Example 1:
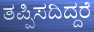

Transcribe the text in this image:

ತಪ್ಪಿಸದಿದ್ದರೆ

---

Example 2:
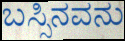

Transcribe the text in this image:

ಬಸ್ಸಿನವನು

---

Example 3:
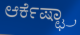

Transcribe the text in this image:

ಆರ್ಕೆಷ್ಟ್ರಾ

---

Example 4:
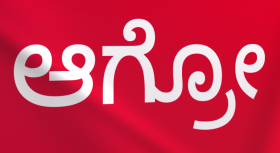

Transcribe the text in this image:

ಆಗ್ರೋ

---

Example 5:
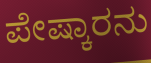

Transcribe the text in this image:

ಪೇಷ್ಕಾರನು